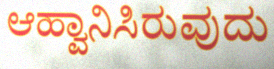
ಆಹ್ವಾನಿಸಿರುವುದು